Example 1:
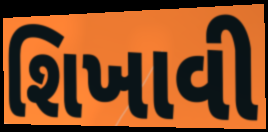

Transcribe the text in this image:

શિખાવી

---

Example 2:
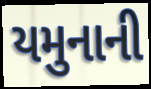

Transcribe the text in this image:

યમુનાની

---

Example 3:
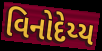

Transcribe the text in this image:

વિનોદેય્ય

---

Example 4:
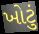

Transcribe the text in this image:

ખોટું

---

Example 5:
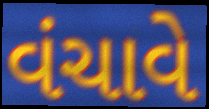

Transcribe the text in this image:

વંચાવે